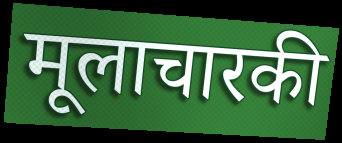
मूलाचारकी